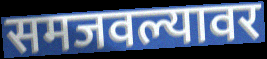
समजवल्यावर